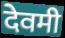
देवमी